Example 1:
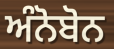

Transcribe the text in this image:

ਅੰਨੋਬੋਨ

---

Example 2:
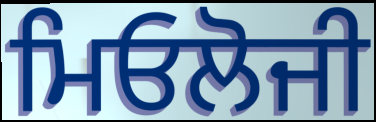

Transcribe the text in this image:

ਮਿਓਲੋਜੀ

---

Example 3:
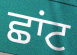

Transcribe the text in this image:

ਛਾਂਟ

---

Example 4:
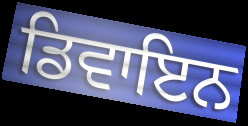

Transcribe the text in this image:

ਡਿਵਾਇਨ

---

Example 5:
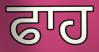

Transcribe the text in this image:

ਫਾਹ